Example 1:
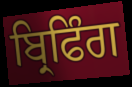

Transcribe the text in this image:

ਬ੍ਰਿਫਿੰਗ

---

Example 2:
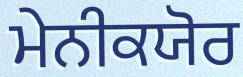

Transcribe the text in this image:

ਮੇਨੀਕਯੋਰ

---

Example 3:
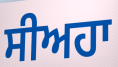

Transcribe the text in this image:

ਸੀਅਹਾ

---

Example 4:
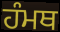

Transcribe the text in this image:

ਹੰਮਥ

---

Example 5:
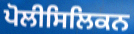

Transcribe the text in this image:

ਪੋਲੀਸਿਲਿਕਨ